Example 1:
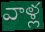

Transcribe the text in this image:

వాళ్ల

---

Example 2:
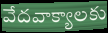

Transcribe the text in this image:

వేదవాక్యాలకు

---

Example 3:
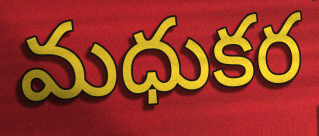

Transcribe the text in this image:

మధుకర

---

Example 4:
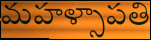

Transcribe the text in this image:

మహళ్సాపతి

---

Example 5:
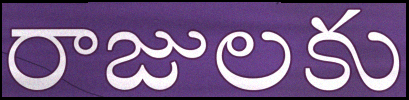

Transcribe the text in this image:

రాజులకు